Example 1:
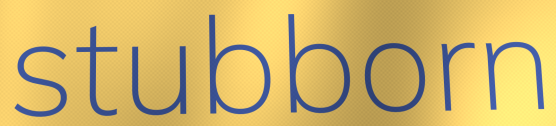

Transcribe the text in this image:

stubborn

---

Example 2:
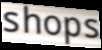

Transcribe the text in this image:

shops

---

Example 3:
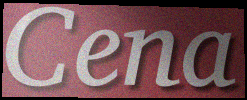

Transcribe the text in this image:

Cena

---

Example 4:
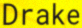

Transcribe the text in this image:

Drake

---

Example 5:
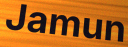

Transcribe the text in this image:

Jamun